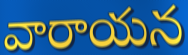
వారాయన